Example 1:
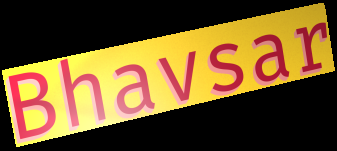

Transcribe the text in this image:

Bhavsar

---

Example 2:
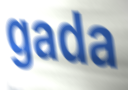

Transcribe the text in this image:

gada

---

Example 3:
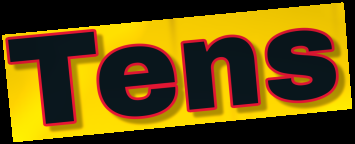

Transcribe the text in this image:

Tens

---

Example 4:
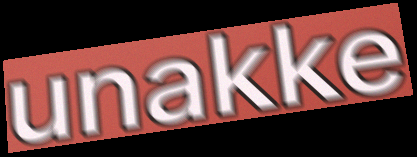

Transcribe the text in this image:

unakke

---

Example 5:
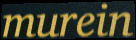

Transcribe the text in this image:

murein